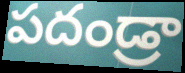
పదండ్రా